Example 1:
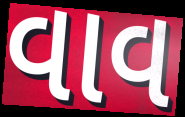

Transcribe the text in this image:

વાવ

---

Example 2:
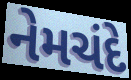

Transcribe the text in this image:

નેમચંદે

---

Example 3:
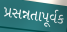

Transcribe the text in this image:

પ્રસન્નતાપૂર્વક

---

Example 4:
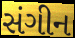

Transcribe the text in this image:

સંગીન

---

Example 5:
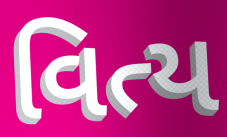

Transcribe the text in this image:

વિત્ય